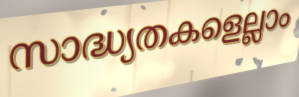
സാദ്ധ്യതകളെല്ലാം